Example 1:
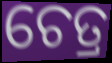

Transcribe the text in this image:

ଚେତ୍ର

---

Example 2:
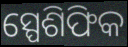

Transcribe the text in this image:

ସ୍ପେଶିଫିକ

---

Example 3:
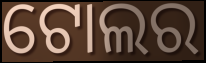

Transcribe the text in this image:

ଟୋଲର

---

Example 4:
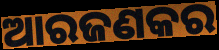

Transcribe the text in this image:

ଆରଜଣକର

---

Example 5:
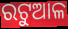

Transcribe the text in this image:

ରଟୁଆଳ